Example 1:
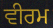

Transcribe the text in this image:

ਵੀਰਮ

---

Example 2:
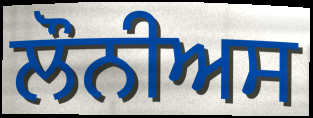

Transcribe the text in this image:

ਲੌਨੀਅਸ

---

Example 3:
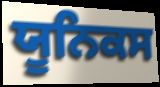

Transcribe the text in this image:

ਯੂਨਿਕਸ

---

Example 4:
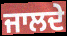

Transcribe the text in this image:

ਜਾਲਦੇ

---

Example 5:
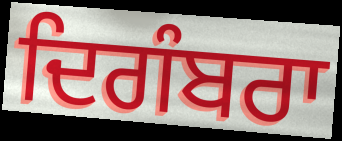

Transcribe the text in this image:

ਦਿਗੰਬਰਾ